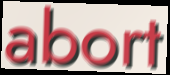
abort